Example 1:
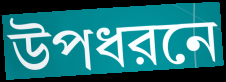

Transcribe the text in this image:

উপধরনে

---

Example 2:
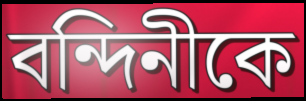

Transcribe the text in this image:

বন্দিনীকে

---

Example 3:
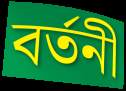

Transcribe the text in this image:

বর্তনী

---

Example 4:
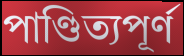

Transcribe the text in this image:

পাণ্ডিত্যপূর্ণ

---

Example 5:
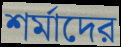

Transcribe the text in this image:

শর্মাদের